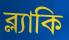
ব্ল্যাকি